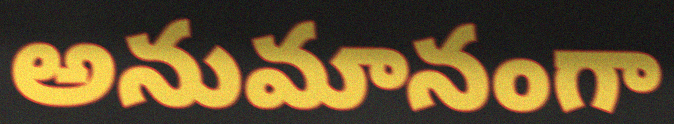
అనుమానంగా